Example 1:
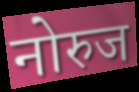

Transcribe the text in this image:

नोरुज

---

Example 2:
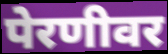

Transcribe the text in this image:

पेरणीवर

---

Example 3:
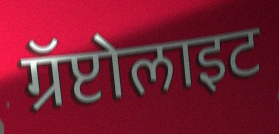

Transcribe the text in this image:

ग्रॅप्टोलाइट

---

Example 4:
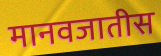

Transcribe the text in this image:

मानवजातीस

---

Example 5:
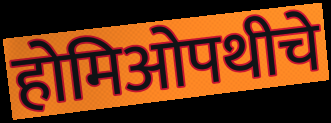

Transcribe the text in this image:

होमिओपथीचे